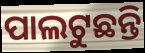
ପାଲଟୁଛନ୍ତି